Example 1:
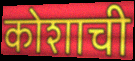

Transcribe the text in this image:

कोशाची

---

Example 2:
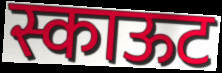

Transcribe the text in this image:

स्काऊट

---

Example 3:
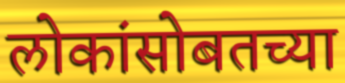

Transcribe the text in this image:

लोकांसोबतच्या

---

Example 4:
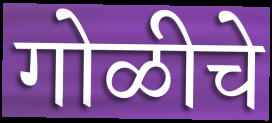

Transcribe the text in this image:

गोळीचे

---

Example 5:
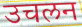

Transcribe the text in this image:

उचलन